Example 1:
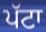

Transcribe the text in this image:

ਪੱਟਾ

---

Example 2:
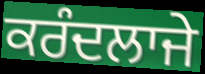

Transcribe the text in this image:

ਕਰੰਦਲਾਜੇ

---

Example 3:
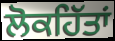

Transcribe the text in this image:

ਲੋਕਹਿੱਤਾਂ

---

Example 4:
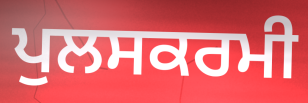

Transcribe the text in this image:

ਪੁਲਸਕਰਮੀ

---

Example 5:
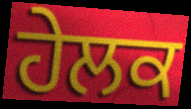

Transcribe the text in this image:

ਹੇਲਕ